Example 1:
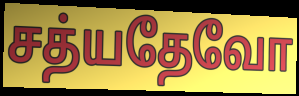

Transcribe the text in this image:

சத்யதேவோ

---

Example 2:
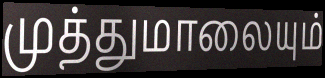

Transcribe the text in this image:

முத்துமாலையும்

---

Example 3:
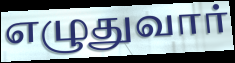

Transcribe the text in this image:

எழுதுவார்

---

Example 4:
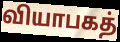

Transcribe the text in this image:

வியாபகத்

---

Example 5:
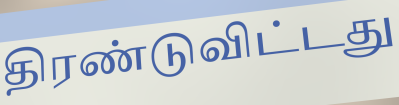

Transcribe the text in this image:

திரண்டுவிட்டது